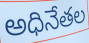
అధినేతల